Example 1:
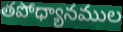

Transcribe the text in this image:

తపోధ్యానముల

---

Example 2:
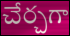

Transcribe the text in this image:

చేర్చగా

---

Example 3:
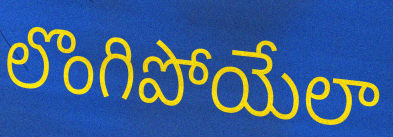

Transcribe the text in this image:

లొంగిపోయేలా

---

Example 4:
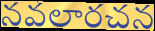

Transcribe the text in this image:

నవలారచన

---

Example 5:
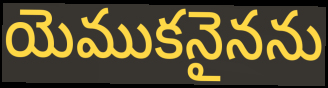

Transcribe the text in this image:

యెముకనైనను